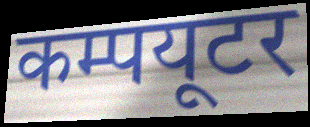
कम्पयूटर